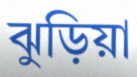
ঝুড়িয়া